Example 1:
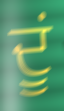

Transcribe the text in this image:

ਦੂਂ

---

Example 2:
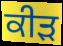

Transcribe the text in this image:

ਕੀੜ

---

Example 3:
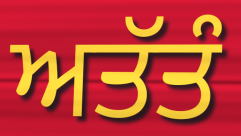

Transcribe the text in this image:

ਅਤੱਤੰ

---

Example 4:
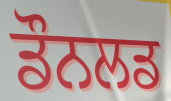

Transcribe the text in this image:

ਡੌਨਲਡ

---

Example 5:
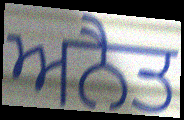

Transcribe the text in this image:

ਅਨੈਤ